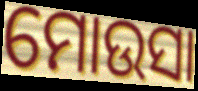
ମୋଉସା